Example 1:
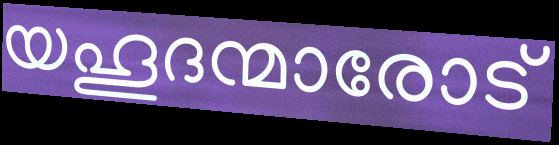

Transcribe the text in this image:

യഹൂദന്മാരോട്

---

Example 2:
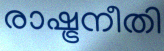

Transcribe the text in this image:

രാഷ്ട്രനീതി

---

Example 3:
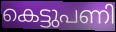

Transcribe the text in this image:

കെട്ടുപണി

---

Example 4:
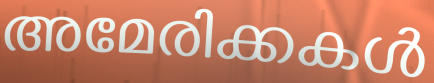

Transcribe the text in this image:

അമേരിക്കകൾ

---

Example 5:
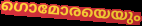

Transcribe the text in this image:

ഗൊമോരയെയും